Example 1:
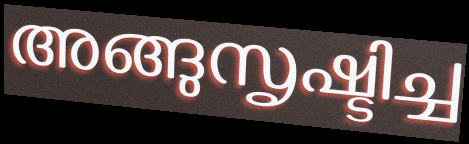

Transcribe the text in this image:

അങ്ങുസൃഷ്ടിച്ച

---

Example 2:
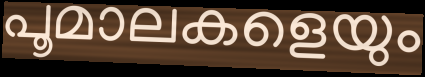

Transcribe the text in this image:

പൂമാലകളെയും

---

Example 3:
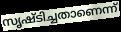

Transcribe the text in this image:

സൃഷ്ടിച്ചതാണെന്ന്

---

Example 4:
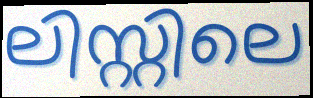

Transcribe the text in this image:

ലിസ്റ്റിലെ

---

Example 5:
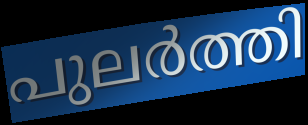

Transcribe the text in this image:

പുലർത്തി